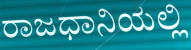
ರಾಜಧಾನಿಯಲ್ಲಿ